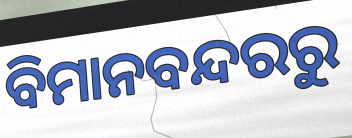
ବିମାନବନ୍ଦରରୁ